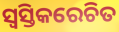
ସ୍ୱସ୍ତିକରେଚିତ